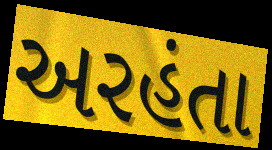
અરહંતા